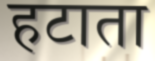
हटाता